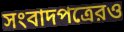
সংবাদপত্রেরও